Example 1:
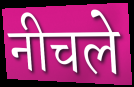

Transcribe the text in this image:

नीचले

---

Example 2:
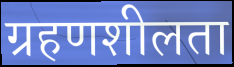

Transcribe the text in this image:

ग्रहणशीलता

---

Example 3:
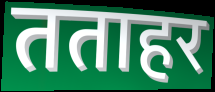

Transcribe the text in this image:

तताहर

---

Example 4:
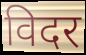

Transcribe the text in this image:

विदर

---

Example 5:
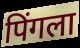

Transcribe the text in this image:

पिंगला